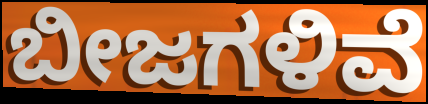
ಬೀಜಗಳಿವೆ